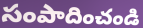
సంపాదించండి